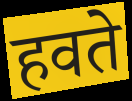
हवते